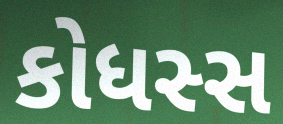
કોધસ્સ